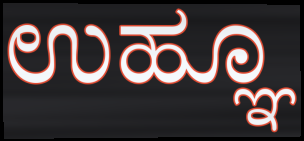
ಉಹ್ಞೂ